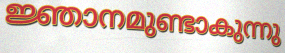
ജ്ഞാനമുണ്ടാകുന്നു